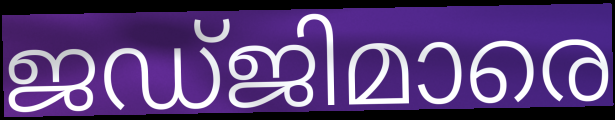
ജഡ്ജിമാരെ